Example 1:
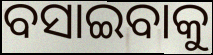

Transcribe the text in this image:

ବସାଇବାକୁ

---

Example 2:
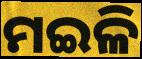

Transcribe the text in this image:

ମଇଳି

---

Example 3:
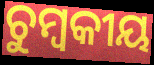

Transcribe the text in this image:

ଚୁମ୍ବକୀୟ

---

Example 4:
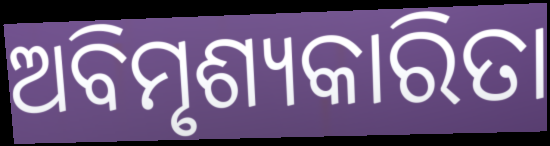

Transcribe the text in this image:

ଅବିମୃଶ୍ୟକାରିତା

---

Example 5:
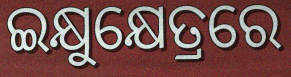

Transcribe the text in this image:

ଇକ୍ଷୁକ୍ଷେତ୍ରରେ